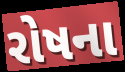
રોષના